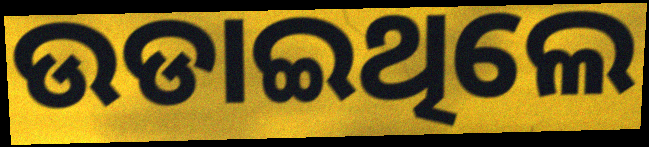
ଉଡାଇଥିଲେ